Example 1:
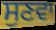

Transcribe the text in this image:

ਸੁਣਵਾ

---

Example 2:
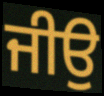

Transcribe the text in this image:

ਜੀਉ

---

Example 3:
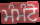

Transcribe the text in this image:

ਮੰਮੰਟੋ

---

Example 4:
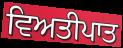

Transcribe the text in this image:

ਵਿਅਤੀਪਾਤ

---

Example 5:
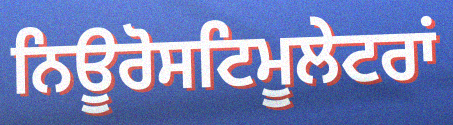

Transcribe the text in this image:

ਨਿਊਰੋਸਟਿਮੂਲੇਟਰਾਂ